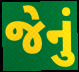
જેનું